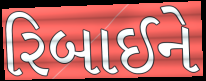
રિબાઈને